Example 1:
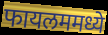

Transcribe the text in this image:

फायलममध्ये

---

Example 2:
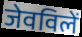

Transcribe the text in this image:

जेवविलें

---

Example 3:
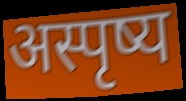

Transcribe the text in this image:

अस्पृष्य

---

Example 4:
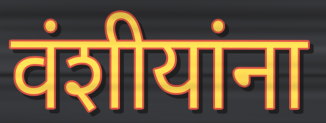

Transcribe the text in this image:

वंशीयांना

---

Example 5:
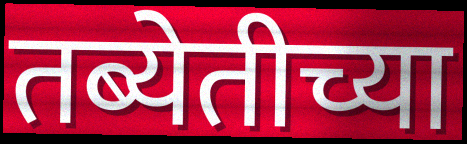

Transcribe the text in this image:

तब्येतीच्या